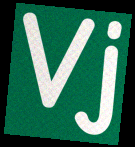
Vj